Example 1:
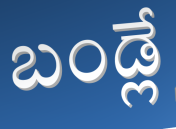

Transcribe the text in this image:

బండ్లే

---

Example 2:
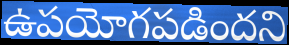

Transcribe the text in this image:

ఉపయోగపడిందని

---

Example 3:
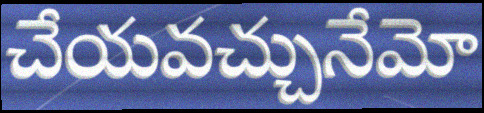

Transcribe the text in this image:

చేయవచ్చునేమో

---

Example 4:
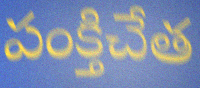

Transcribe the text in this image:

పంక్తిచేత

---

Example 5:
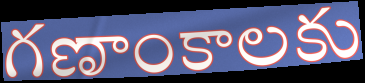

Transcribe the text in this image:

గణాంకాలకు